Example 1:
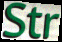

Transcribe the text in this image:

Str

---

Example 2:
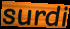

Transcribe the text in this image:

surdi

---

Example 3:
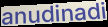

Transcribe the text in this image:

anudinadi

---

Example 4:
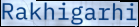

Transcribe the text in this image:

Rakhigarhi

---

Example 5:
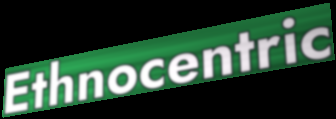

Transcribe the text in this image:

Ethnocentric